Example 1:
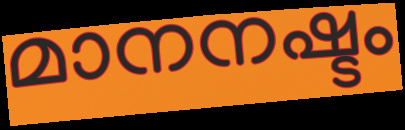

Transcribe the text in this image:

മാനനഷ്ടം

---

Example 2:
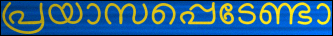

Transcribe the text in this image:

പ്രയാസപ്പെടേണ്ടാ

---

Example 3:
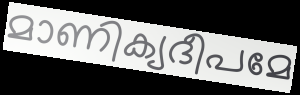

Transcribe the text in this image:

മാണിക്യദീപമേ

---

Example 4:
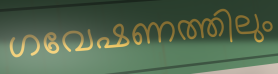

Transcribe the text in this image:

ഗവേഷണത്തിലും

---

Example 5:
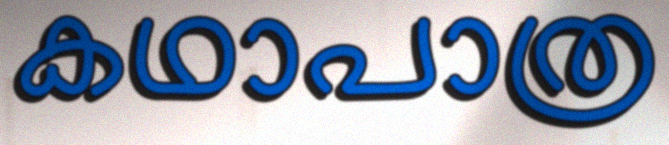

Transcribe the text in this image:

കഥാപാത്ര